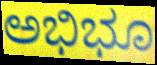
ಅಭಿಭೂ